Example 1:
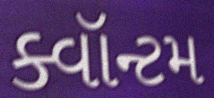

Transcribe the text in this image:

ક્વૉન્ટમ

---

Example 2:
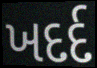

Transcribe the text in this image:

ખદર્દ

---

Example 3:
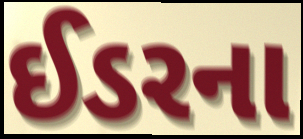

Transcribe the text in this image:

ઈડરના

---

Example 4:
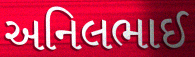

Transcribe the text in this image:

અનિલભાઈ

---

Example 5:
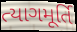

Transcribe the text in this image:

ત્યાગમૂર્તિ